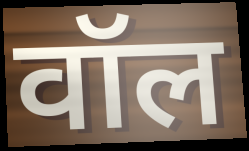
वॉल